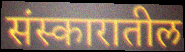
संस्कारातील